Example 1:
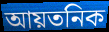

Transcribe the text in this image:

আয়তনিক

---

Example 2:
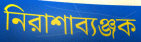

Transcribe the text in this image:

নিরাশাব্যঞ্জক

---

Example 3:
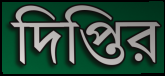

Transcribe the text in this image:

দিপ্তির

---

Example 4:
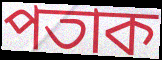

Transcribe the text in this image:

পতাক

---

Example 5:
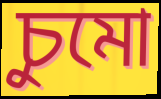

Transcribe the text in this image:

চুমো